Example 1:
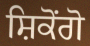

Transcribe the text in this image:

ਸ਼ਿਕੋਂਗੋ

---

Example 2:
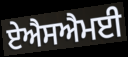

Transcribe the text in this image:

ਏਐਸਐਮਈ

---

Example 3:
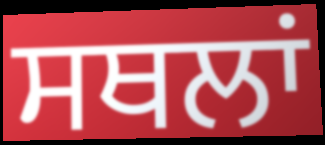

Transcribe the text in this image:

ਸਥਲਾਂ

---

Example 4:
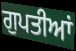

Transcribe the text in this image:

ਗੁਪਤੀਆਂ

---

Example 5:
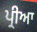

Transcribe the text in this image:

ਪ੍ਰੀਆ